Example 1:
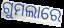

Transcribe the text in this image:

ଗୁମଲାରେ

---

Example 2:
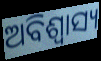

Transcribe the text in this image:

ଅବିଶ୍ଵାସ୍ୟ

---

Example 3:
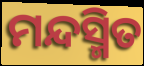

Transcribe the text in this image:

ମନ୍ଦସ୍ମିତ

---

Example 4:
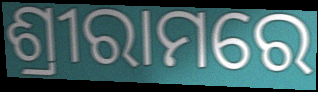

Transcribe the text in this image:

ଶ୍ରୀରାମରେ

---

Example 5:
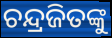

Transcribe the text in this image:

ଚନ୍ଦ୍ରଜିତଙ୍କୁ